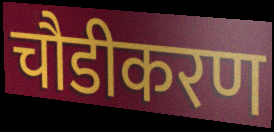
चौडीकरण